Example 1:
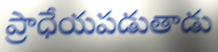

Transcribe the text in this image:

ప్రాధేయపడుతాడు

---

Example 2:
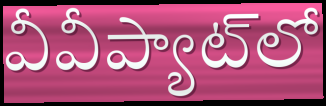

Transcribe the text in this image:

వీవీప్యాట్‌లో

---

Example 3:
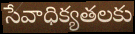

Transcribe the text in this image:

సేవాధిక్యతలకు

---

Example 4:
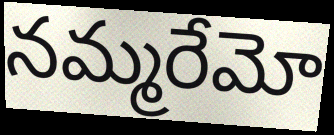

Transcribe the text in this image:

నమ్మరేమో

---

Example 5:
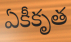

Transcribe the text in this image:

ఏకీకృత